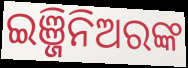
ଇଞ୍ଜିନିଅରଙ୍କ